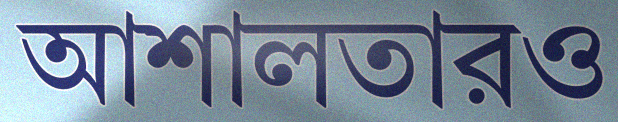
আশালতারও